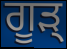
ਗੂੜ੍